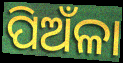
ପିଅଁଳା